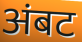
अंबट